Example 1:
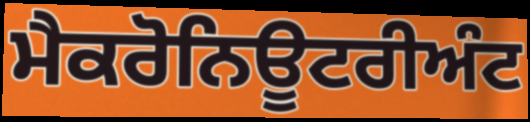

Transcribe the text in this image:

ਮੈਕਰੋਨਿਊਟਰੀਅੰਟ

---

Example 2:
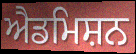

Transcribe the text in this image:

ਐਡਮਿਸ਼ਨ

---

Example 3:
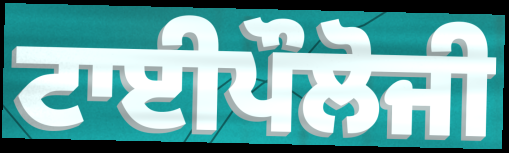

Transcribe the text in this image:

ਟਾਈਪੌਲੋਜੀ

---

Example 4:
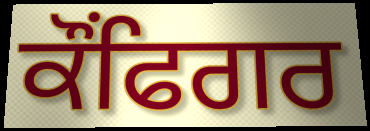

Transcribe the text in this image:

ਕੌਂਫਿਗਰ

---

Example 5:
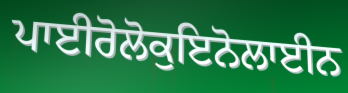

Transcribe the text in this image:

ਪਾਈਰੋਲੋਕੁਇਨੋਲਾਈਨ